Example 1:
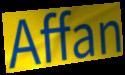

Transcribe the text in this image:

Affan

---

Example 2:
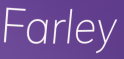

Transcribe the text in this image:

Farley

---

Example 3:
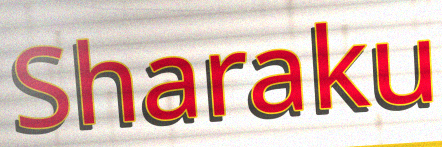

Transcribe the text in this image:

Sharaku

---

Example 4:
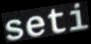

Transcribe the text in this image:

seti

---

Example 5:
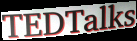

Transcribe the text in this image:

TEDTalks